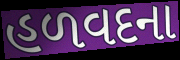
હળવદના